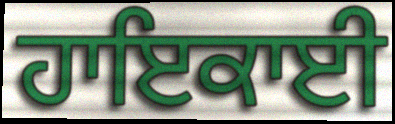
ਹਾਇਕਾਈ